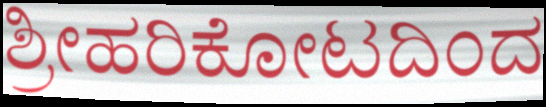
ಶ್ರೀಹರಿಕೋಟದಿಂದ